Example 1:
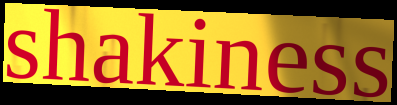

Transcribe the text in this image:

shakiness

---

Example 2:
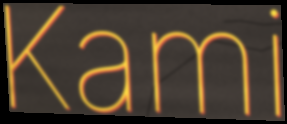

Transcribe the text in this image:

Kami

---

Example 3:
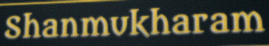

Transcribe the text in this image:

Shanmukharam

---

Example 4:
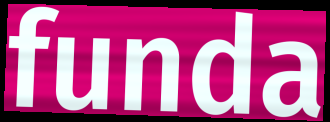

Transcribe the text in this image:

funda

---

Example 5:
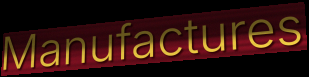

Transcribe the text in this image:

Manufactures